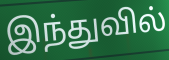
இந்துவில்